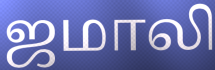
ஜமாலி